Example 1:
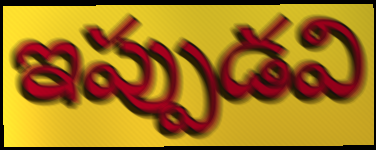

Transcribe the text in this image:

ఇప్పుడవి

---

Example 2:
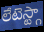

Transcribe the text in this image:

లేటెస్ట్గా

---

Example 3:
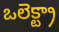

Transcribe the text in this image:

ఒలెక్ట్రా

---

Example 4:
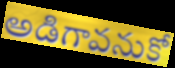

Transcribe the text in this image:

అడిగావనుకో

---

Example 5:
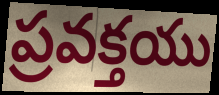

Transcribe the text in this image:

ప్రవక్తయు